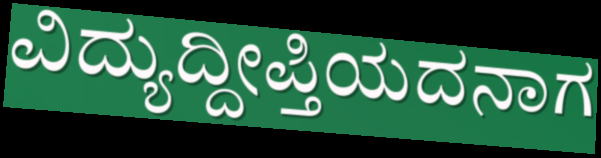
ವಿದ್ಯುದ್ದೀಪ್ತಿಯದನಾಗ